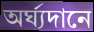
অর্ঘ্যদানে